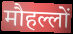
मौहल्लों